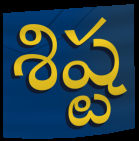
శిష్ట